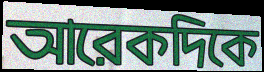
আরেকদিকে